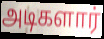
அடிகளார்